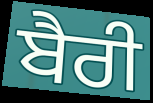
ਬੈਰੀ